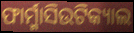
ଫାର୍ମ୍ମାସିଉଟିକ୍ୟାଲ